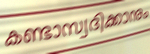
കണ്ടാസ്വദിക്കാനും